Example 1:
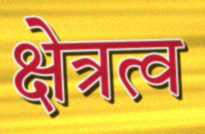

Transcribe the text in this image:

क्षेत्रत्व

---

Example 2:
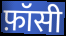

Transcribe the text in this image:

फ़ॉसी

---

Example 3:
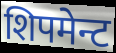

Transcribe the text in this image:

शिपमेन्ट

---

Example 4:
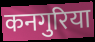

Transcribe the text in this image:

कनगुरिया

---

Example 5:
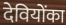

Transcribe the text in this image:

देवियोंका